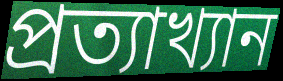
প্রত্যাখ্যান